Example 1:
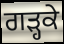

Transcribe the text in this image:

ਗੜ੍ਹਕੇ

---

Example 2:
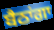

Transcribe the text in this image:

ਬੈਠਾਂਗਾ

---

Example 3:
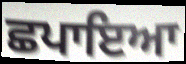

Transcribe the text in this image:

ਛਪਾਇਆ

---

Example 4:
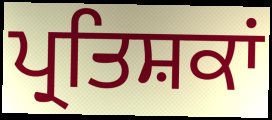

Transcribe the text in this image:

ਪ੍ਰਤਿਸ਼ਕਾਂ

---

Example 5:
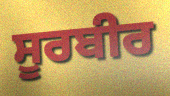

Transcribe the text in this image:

ਸੂਰਬੀਰ